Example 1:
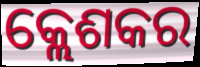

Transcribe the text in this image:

କ୍ଲେଶକର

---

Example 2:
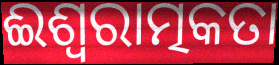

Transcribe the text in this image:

ଈଶ୍ଵରାତ୍ମକତା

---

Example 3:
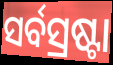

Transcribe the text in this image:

ସର୍ବସ୍ରଷ୍ଟା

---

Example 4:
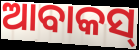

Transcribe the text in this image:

ଆବାକସ୍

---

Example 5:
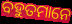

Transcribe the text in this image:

ବହୁତମାନେ